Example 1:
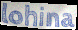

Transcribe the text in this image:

lohina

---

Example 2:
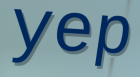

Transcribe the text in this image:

yep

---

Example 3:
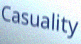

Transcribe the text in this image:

Casuality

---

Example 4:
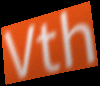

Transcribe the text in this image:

Vth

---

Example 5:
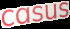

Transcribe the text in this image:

casus